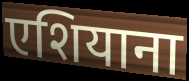
एशियाना